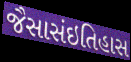
જૈસાસંઇતિહાસ